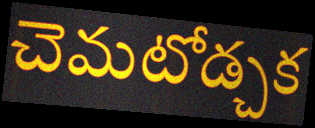
చెమటోడ్చక